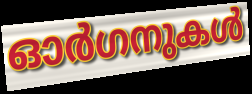
ഓർഗനുകൾ